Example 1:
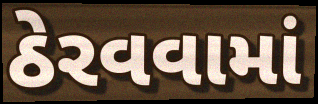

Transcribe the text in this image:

ઠેરવવામાં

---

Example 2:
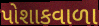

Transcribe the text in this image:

પોશાકવાળા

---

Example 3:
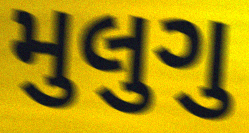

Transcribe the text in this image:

મુલુગુ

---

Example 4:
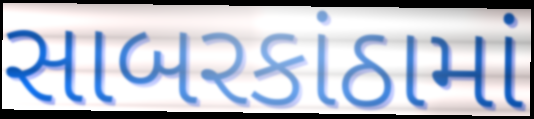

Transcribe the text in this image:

સાબરકાંઠામાં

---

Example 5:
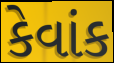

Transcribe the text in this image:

કેવાંક